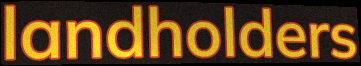
landholders